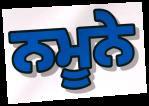
ਨਮੂਨੇ